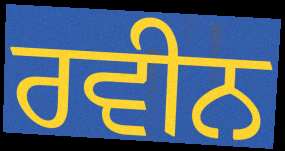
ਰਵੀਨ